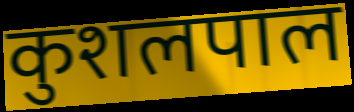
कुशलपाल